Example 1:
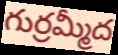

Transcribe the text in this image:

గుర్రమ్మీద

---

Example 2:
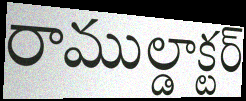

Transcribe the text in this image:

రాముల్డాక్టర్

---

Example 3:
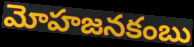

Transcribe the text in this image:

మోహజనకంబు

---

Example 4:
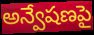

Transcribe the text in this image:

అన్వేషణపై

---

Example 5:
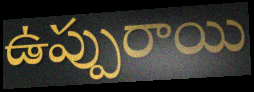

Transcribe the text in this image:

ఉప్పురాయి